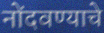
नोंदवण्याचे